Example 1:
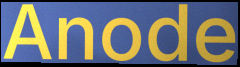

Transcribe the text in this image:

Anode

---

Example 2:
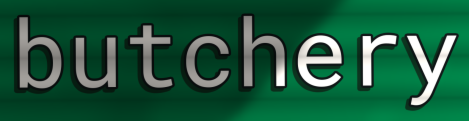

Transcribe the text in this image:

butchery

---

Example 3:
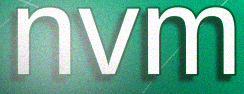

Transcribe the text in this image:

nvm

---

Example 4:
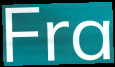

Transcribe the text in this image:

Fra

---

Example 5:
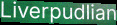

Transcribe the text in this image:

Liverpudlian